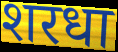
शरधा